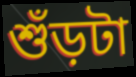
শুঁড়টা